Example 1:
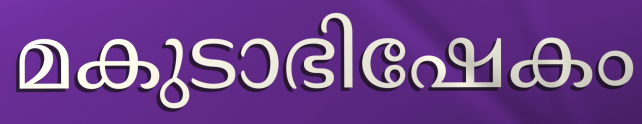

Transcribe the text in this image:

മകുടാഭിഷേകം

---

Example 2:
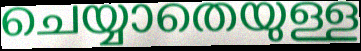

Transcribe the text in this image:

ചെയ്യാതെയുള്ള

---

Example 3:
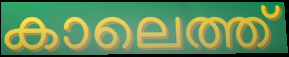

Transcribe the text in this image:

കാലെത്ത്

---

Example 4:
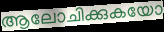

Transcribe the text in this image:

ആലോചിക്കുകയോ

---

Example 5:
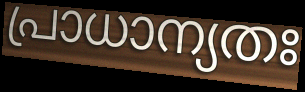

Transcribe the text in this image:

പ്രാധാന്യതഃ